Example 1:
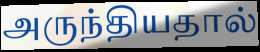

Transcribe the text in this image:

அருந்தியதால்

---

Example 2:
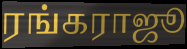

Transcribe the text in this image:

ரங்கராஜூ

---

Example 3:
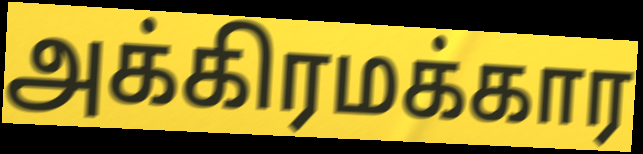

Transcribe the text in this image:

அக்கிரமக்கார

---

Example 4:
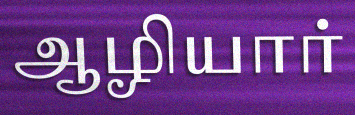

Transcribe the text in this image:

ஆழியார்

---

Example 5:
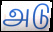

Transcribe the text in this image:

அடு